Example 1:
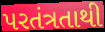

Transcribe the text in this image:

પરતંત્રતાથી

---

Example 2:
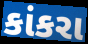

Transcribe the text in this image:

કાંકરા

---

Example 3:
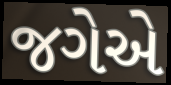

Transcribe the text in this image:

જગેએ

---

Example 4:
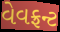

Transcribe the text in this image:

વેવફ્રન્ટ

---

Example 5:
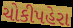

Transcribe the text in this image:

ચોકીપહેરા